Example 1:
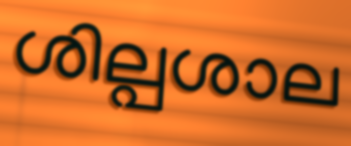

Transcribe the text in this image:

ശില്പശാല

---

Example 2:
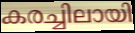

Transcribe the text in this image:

കരച്ചിലായി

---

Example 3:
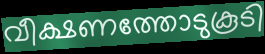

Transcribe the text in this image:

വീക്ഷണത്തോടുകൂടി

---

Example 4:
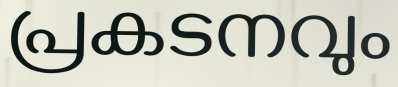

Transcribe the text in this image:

പ്രകടനവും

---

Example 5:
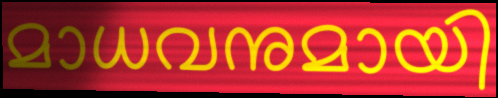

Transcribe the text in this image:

മാധവനുമായി